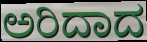
ಅರಿದಾದ